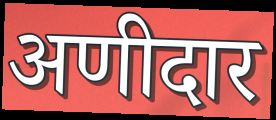
अणीदार